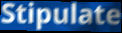
Stipulate